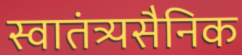
स्वातंत्र्यसैनिक